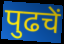
पुढचें